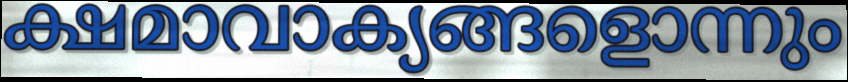
ക്ഷമാവാക്യങ്ങളൊന്നും